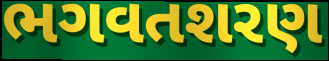
ભગવતશરણ